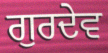
ਗੁਰਦੇਵ